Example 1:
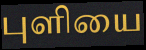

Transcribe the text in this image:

புளியை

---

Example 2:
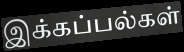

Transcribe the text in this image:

இக்கப்பல்கள்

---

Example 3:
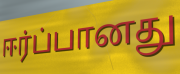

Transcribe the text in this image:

ஈர்ப்பானது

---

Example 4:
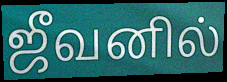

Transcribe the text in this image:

ஜீவனில்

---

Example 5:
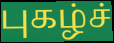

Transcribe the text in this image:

புகழ்ச்